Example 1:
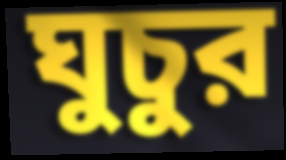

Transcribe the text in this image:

ঘুচুর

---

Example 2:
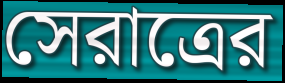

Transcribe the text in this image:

সেরাত্রের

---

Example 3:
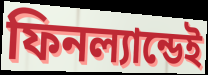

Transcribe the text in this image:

ফিনল্যান্ডেই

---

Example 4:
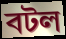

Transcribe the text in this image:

বটল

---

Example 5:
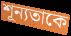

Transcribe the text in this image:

শূন্যতাকে